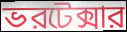
ভরটেক্সার